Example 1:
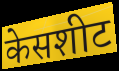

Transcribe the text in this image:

केसशीट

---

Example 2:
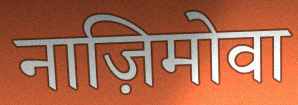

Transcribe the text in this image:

नाज़िमोवा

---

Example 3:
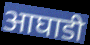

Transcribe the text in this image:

आघाडी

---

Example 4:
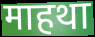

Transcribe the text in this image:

माहथा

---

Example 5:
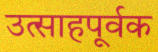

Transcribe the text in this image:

उत्‍साहपूर्वक